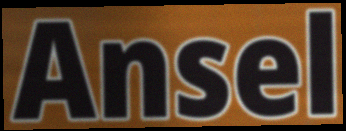
Ansel